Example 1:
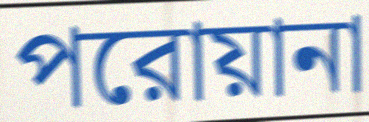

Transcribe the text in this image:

পরোয়ানা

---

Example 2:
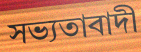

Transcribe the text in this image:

সভ্যতাবাদী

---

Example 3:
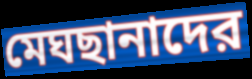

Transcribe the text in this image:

মেঘছানাদের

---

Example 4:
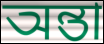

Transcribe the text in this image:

অন্তা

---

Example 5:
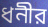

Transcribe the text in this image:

ধনীর